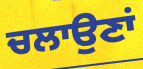
ਚਲਾਉਣਾਂ